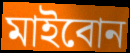
মাইবোন